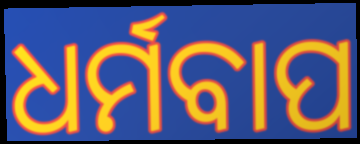
ଧର୍ମବାପ